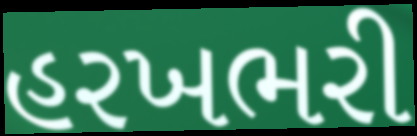
હરખભરી